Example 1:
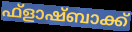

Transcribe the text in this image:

ഫ്ളാഷ്ബാക്ക്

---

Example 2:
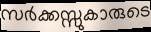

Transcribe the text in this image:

സർക്കസ്സുകാരുടെ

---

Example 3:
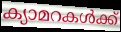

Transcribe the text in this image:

ക്യാമറകൾക്ക്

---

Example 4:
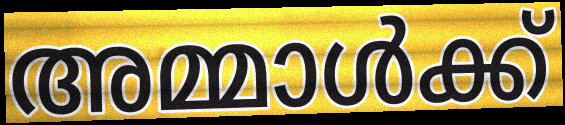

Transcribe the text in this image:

അമ്മാൾക്ക്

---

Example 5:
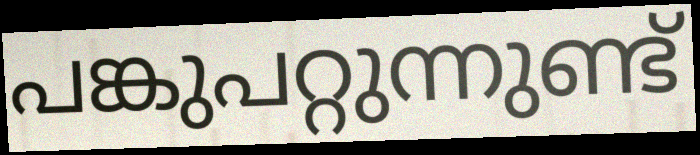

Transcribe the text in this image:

പങ്കുപറ്റുന്നുണ്ട്